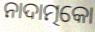
ନାଦାତ୍ମକୋ